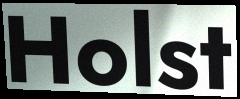
Holst